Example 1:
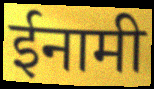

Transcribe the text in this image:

ईनामी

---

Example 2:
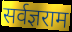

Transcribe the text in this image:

सर्वज्ञराम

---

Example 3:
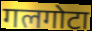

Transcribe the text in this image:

गलगोटा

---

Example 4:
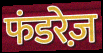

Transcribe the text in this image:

फंडरेज़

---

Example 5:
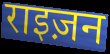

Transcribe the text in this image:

राइज़न